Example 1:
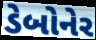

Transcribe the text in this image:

ડેબોનેર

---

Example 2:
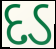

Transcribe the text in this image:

દડ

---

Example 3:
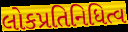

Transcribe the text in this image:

લોકપ્રતિનિધિત્વ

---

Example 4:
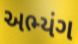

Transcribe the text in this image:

અભ્યંગ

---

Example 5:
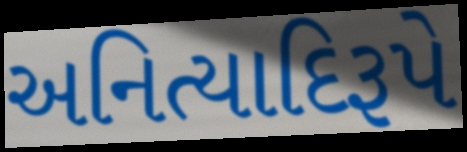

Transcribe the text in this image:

અનિત્યાદિરૂપે